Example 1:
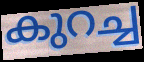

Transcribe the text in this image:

കുറച്ച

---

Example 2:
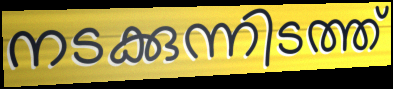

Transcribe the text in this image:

നടക്കുന്നിടത്ത്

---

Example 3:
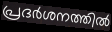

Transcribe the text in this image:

പ്രദർശനത്തിൽ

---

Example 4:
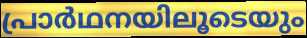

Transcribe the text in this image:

പ്രാർഥനയിലൂടെയും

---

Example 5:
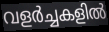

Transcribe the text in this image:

വളർച്ചകളിൽ